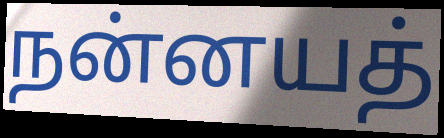
நன்னயத்